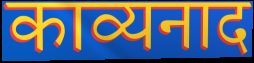
काव्यनाद